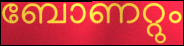
ബോണറ്റും